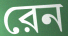
রেন